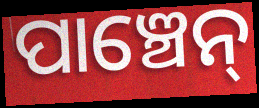
ପାଞ୍ଚେନ୍